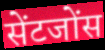
सेंटजोंस